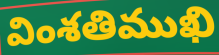
వింశతిముఖి